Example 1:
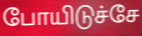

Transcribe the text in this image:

போயிடுச்சே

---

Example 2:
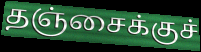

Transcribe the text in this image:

தஞ்சைக்குச்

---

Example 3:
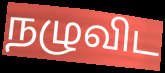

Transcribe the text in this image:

நழுவிட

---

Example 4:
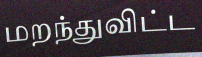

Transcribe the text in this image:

மறந்துவிட்ட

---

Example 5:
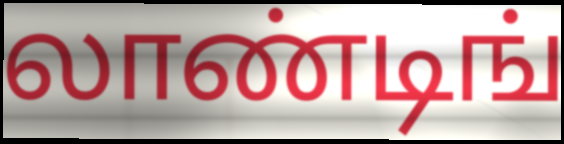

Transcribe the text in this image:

லாண்டிங்